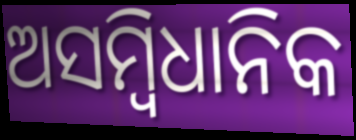
ଅସମ୍ବିଧାନିକ